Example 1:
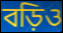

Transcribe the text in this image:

বড়িও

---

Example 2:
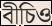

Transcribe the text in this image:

বীচিও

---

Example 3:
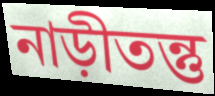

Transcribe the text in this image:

নাড়ীতন্তু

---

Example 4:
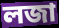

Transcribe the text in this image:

লজা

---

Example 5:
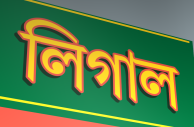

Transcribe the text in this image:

লিগাল